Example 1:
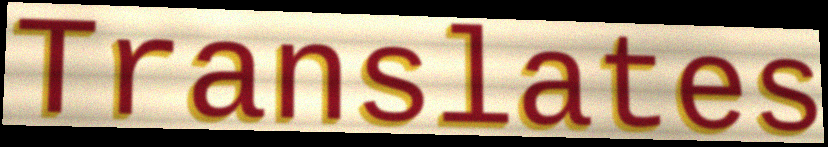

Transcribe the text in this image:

Translates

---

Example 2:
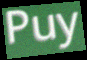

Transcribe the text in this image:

Puy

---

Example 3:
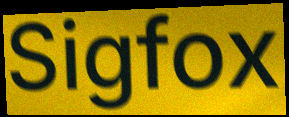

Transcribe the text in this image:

Sigfox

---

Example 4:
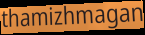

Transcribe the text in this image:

thamizhmagan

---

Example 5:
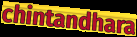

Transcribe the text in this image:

chintandhara